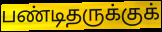
பண்டிதருக்குக்